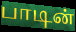
பாடின்